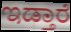
ಇಡ್ತಾರೆ